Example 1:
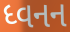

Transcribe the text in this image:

ધ્વનન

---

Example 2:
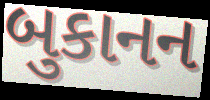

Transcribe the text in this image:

બુકાનન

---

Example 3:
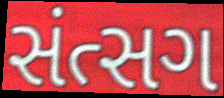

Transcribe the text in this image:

સંત્સગ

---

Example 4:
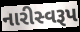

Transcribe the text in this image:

નારીસ્વરૂપ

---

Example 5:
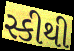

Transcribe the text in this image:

સ્કીથી